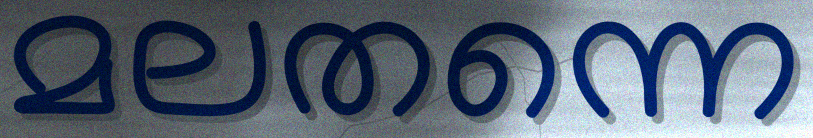
മലതന്നെ